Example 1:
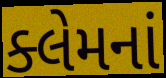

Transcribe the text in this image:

ક્લેમનાં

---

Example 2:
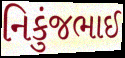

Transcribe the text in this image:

નિકુંજભાઈ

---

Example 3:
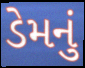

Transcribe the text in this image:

ડેમનું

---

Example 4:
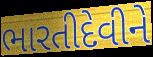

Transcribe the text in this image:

ભારતીદેવીને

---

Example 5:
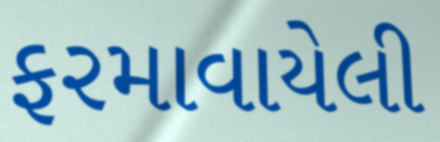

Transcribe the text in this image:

ફરમાવાયેલી